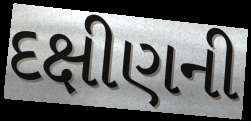
દક્ષીણની